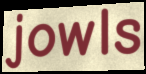
jowls